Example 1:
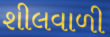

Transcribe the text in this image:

શીલવાળી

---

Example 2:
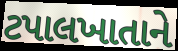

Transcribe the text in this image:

ટપાલખાતાને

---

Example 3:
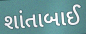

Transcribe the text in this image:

શાંતાબાઈ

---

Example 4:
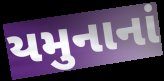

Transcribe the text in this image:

યમુનાનાં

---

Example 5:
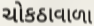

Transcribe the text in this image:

ચોકઠાવાળા